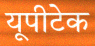
यूपीटेक